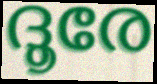
ദൂരേ